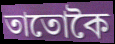
তাতোকৈ